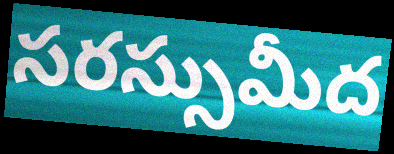
సరస్సుమీద